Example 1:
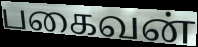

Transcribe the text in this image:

பகைவன்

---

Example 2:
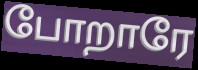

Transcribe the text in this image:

போறாரே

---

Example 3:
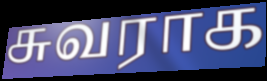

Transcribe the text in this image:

சுவராக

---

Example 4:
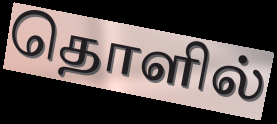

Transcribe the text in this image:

தொளில்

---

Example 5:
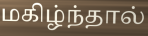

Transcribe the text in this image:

மகிழ்ந்தால்